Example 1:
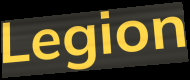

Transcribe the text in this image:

Legion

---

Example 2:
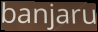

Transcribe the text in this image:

banjaru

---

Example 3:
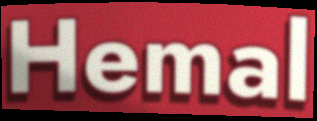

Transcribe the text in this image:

Hemal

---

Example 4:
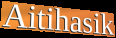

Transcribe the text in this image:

Aitihasik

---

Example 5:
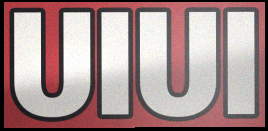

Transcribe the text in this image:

UIUI